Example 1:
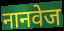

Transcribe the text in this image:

नानवेज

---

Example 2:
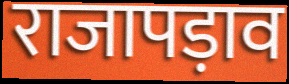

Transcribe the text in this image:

राजापड़ाव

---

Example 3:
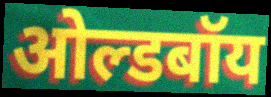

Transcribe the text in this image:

ओल्डबॉय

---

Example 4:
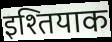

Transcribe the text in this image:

इश्तियाक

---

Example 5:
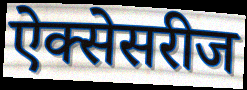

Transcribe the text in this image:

ऐक्सेसरीज